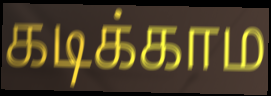
கடிக்காம